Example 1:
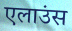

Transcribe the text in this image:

एलाउंस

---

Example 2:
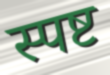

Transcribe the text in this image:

स्पष्ट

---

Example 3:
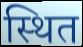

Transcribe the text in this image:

स्थित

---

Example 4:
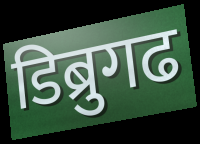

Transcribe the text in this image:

डिब्रुगढ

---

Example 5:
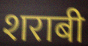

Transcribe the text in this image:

शराबी